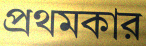
প্রথমকার